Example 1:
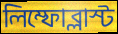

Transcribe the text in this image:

লিম্ফোব্লাস্ট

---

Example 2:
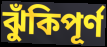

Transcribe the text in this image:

ঝুঁকিপূর্ণ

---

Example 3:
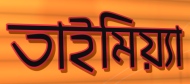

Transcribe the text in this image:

তাইমিয়্যা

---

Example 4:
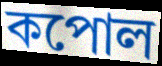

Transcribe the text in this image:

কপোল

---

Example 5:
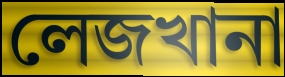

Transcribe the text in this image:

লেজখানা